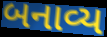
બનાવ્ય